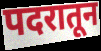
पदरातून